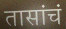
तासांचं